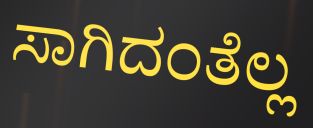
ಸಾಗಿದಂತೆಲ್ಲ